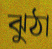
ঝুঠা